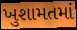
ખુશામતમાં